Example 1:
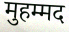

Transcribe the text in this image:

मुहम्मद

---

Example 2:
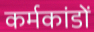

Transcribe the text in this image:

कर्मकांडों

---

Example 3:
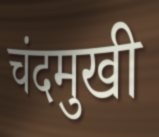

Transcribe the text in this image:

चंदमुखी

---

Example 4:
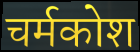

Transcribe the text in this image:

चर्मकोश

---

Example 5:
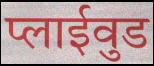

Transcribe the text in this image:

प्लाईवुड